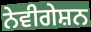
ਨੇਵੀਗੇਸ਼ਨ